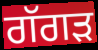
ਗੱਗੜ